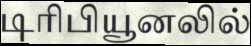
டிரிபியூனலில்